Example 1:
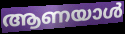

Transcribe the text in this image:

ആണയാൾ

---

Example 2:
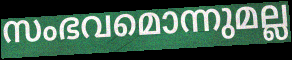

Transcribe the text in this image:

സംഭവമൊന്നുമല്ല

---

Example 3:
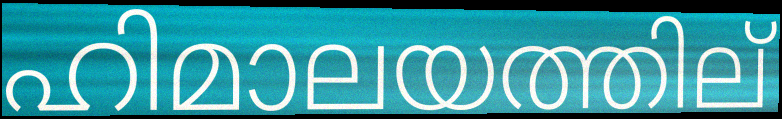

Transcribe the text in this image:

ഹിമാലയത്തില്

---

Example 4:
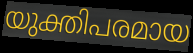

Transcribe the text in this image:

യുക്തിപരമായ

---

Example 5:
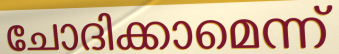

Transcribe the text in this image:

ചോദിക്കാമെന്ന്